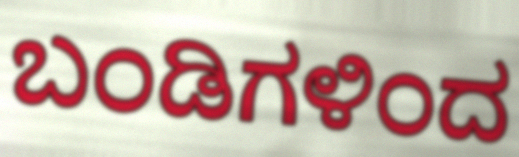
ಬಂಡಿಗಳಿಂದ